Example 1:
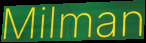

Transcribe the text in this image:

Milman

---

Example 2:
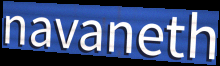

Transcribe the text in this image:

navaneth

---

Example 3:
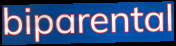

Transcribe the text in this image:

biparental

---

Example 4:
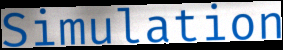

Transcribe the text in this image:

Simulation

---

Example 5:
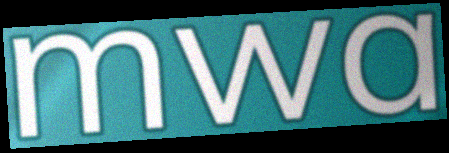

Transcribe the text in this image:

mwa